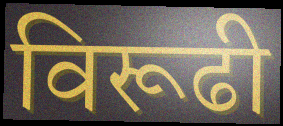
विरूढी